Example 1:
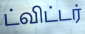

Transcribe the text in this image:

ட்விட்டர்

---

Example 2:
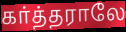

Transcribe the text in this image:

கர்த்தராலே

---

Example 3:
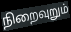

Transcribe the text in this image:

நிறைவுறும்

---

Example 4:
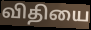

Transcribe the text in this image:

விதியை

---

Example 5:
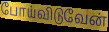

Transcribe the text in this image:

போய்விடுவேன்